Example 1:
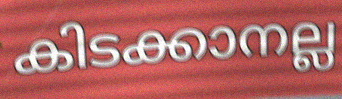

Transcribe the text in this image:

കിടക്കാനല്ല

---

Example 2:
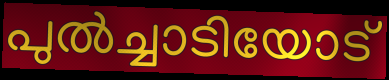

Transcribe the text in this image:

പുൽച്ചാടിയോട്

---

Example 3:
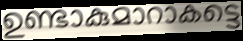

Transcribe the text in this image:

ഉണ്ടാകുമാറാകട്ടെ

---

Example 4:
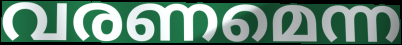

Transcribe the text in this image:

വരണമെന്ന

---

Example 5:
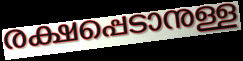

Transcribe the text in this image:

രക്ഷപ്പെടാനുള്ള